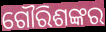
ଗୌରିଶଙ୍କର